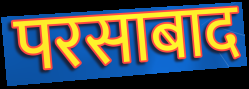
परसाबाद